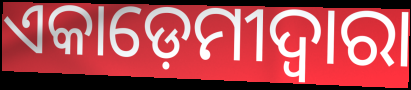
ଏକାଡ଼େମୀଦ୍ଵାରା